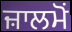
ਜ਼ਾਲਮੋਂ